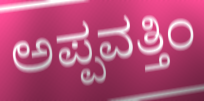
ಅಪ್ಪವತ್ತಿಂ